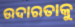
ଉଦାରତାକୁ